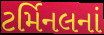
ટર્મિનલનાં